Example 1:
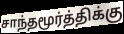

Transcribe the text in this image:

சாந்தமூர்த்திக்கு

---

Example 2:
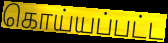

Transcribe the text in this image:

கொய்யப்பட்ட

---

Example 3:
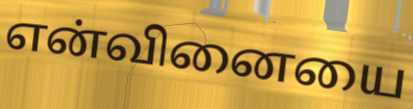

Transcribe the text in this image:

என்வினையை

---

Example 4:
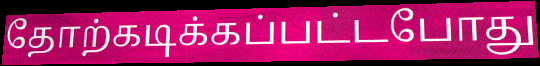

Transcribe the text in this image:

தோற்கடிக்கப்பட்டபோது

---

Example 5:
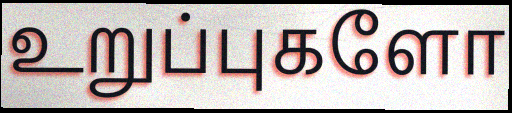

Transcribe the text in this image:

உறுப்புகளோ